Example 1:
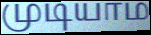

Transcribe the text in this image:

முடியாம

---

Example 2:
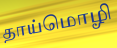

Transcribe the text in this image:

தாய்மொழி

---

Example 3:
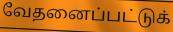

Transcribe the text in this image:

வேதனைப்பட்டுக்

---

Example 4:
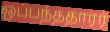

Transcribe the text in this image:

ஒப்பந்ததாரர்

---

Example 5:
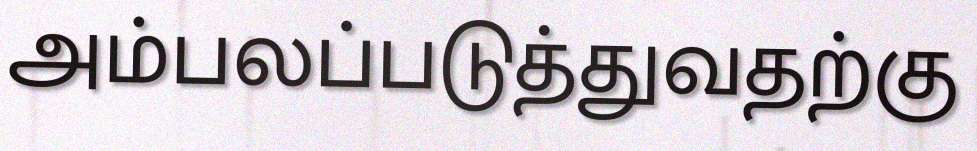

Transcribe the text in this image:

அம்பலப்படுத்துவதற்கு